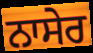
ਨਾਸੇਰ